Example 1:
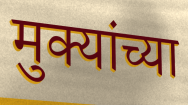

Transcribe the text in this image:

मुक्यांच्या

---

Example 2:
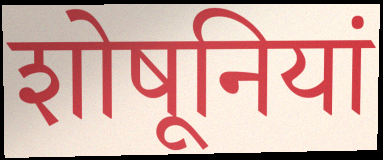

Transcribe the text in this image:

शोषूनियां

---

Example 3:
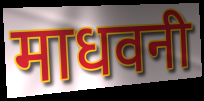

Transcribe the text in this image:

माधवनी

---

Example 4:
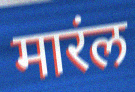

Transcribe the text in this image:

मारंल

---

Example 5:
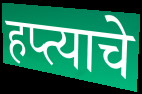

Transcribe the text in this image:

हप्त्याचे